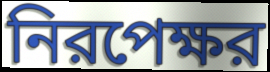
নিরপেক্ষর